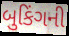
બુકિંગની